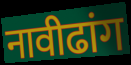
नावीढांग